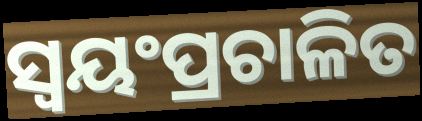
ସ୍ୱୟଂପ୍ରଚାଳିତ